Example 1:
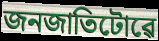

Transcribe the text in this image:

জনজাতিটোৱে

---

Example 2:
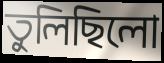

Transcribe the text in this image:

তুলিছিলো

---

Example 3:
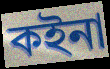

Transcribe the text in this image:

কইনা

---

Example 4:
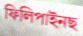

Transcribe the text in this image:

ফিলিপাইনছ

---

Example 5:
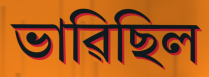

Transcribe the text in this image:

ভাৱিছিল